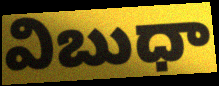
విబుధా